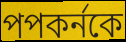
পপকর্নকে